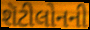
શૅટીલોનની